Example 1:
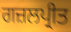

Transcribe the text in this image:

ਗਜ਼ਲਪ੍ਰੀਤ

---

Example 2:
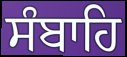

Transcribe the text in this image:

ਸੰਬਾਹਿ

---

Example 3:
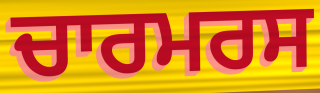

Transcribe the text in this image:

ਚਾਰਮਰਸ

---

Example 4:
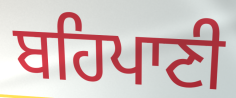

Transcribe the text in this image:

ਬਹਿਪਾਣੀ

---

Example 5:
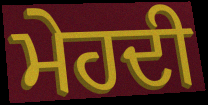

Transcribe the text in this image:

ਮੇਹਦੀ